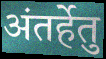
अंतर्हेतु